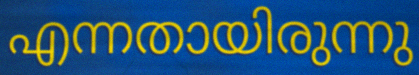
എന്നതായിരുന്നു